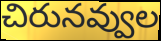
చిరునవ్వుల